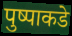
पुष्पाकडे